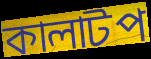
কালাটপ